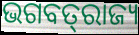
ଭଗବତ୍‌ରାଜ୍ୟ